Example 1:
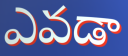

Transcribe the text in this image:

ఎవడా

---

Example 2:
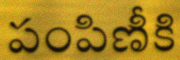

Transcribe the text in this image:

పంపిణీకి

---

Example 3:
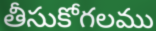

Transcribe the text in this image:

తీసుకోగలము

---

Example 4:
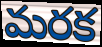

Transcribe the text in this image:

మరక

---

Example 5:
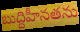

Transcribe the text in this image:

బుద్దిహీనతను